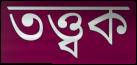
তত্ত্বক